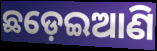
ଛଡ଼େଇଆଣି